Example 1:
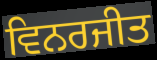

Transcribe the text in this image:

ਵਿਨਰਜੀਤ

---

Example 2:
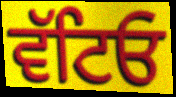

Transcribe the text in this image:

ਵੱਟਿਓ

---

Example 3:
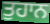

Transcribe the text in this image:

ਤੁਹਾਨ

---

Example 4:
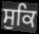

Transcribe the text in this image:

ਸੁਕਿ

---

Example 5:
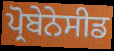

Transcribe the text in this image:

ਪ੍ਰੋਬੇਨੇਸੀਡ